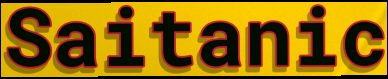
Saitanic